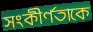
সংকীর্ণতাকে